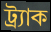
ট্র্যাক